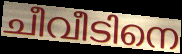
ചീവീടിനെ